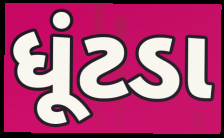
ધૂંટડા